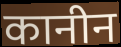
कानीन